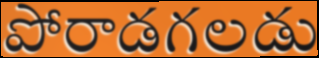
పోరాడగలడు